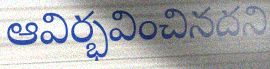
ఆవిర్భవించినదని